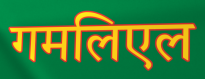
गमलिएल